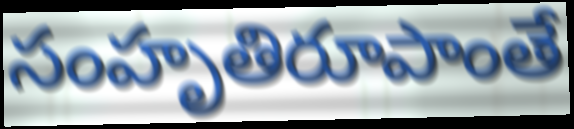
సంహృతిరూపాంతే